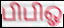
பிபிஓ